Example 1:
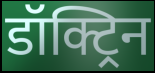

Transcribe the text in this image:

डॉक्ट्रिन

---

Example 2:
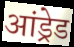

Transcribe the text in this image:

आंड्रेड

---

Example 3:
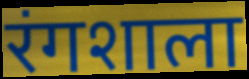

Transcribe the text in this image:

रंगशाला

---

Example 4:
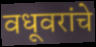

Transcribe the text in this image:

वधूवरांचे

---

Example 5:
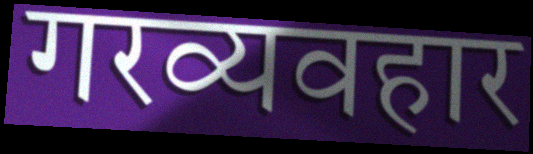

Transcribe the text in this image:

गरव्यवहार